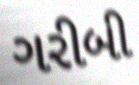
ગરીબી